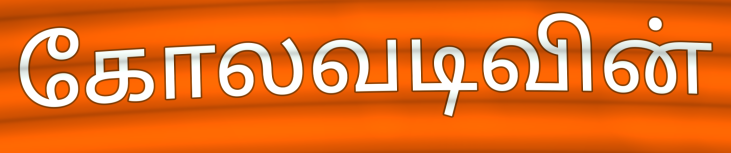
கோலவடிவின்